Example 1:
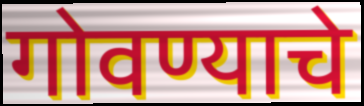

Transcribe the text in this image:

गोवण्याचे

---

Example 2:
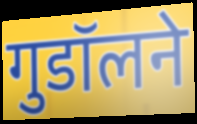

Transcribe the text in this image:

गुडॉलने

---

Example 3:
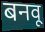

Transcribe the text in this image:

बनवू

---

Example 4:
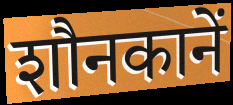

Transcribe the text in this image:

शौनकानें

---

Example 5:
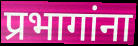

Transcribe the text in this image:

प्रभागांना